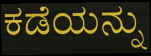
ಕಡೆಯನ್ನು